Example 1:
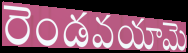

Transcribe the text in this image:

రెండవయామె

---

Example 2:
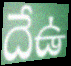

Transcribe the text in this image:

దేఉ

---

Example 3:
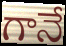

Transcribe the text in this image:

గానే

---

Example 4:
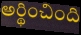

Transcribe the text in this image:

అర్థించింది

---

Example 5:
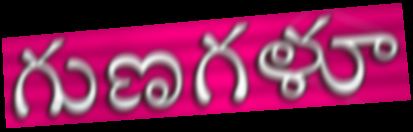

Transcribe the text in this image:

గుణగళూ